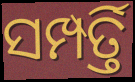
ସମ୍ପର୍ତ୍ତି